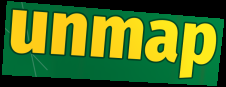
unmap